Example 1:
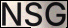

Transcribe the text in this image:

NSG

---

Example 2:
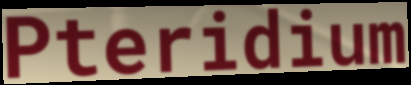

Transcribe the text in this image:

Pteridium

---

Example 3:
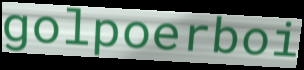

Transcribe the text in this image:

golpoerboi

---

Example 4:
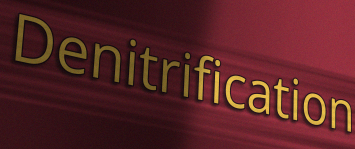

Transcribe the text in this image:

Denitrification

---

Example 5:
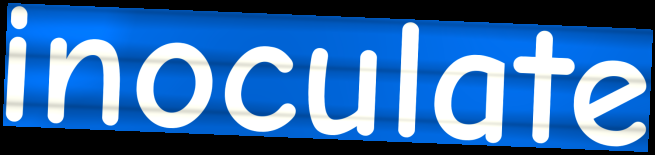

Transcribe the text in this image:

inoculate